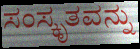
ಸಂಸ್ಕೃತವನ್ನು